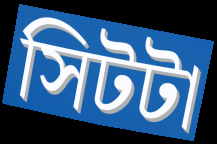
সিটটা